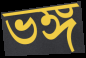
ভঙ্গ